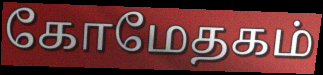
கோமேதகம்